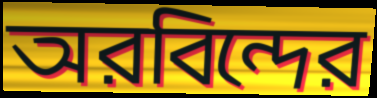
অরবিন্দের